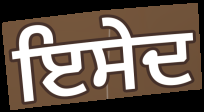
ਇਸੇਦ